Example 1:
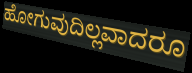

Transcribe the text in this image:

ಹೋಗುವುದಿಲ್ಲವಾದರೂ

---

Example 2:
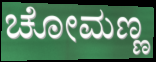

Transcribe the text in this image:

ಚೋಮಣ್ಣ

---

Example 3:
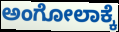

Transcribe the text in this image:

ಅಂಗೋಲಾಕ್ಕೆ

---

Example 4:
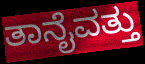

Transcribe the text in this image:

ತಾನೈವತ್ತು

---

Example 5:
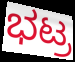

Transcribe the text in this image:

ಭಟ್ರ